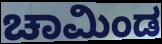
ಚಾಮಿಂಡ